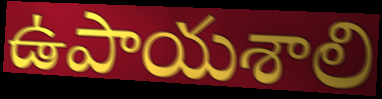
ఉపాయశాలి